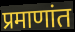
प्रमाणांत